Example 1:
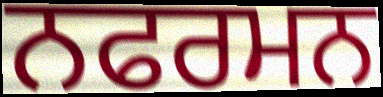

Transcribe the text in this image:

ਨਫਰਮਨ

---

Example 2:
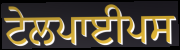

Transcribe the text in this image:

ਟੇਲਪਾਈਪਸ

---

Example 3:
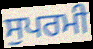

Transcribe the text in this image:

ਸੁਪਰਮੀ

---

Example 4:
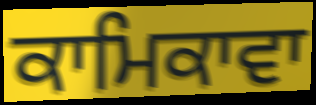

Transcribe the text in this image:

ਕਾਮਿਕਾਵਾ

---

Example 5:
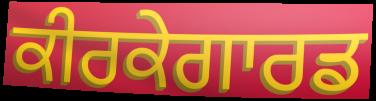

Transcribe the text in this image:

ਕੀਰਕੇਗਾਰਡ